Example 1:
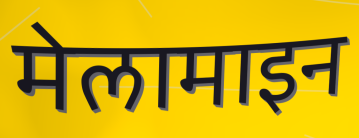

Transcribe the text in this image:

मेलामाइन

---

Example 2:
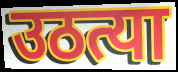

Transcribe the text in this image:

उठत्या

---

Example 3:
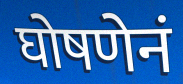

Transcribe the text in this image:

घोषणेनं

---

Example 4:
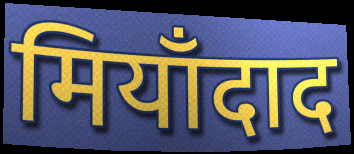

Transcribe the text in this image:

मियाँदाद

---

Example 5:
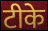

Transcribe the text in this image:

टीके